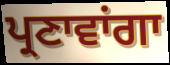
ਪ੍ਰਣਾਵਾਂਗਾ